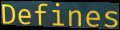
Defines